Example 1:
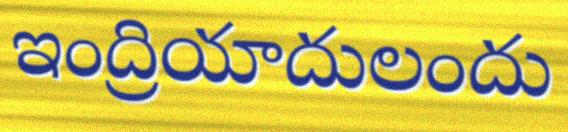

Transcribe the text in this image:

ఇంద్రియాదులందు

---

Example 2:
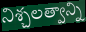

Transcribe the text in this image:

నిశ్చలత్వాన్ని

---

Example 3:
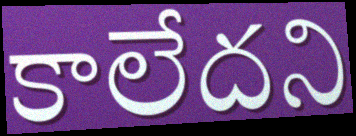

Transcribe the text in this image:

కాలేదని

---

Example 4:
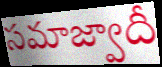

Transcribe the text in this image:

సమాజ్వాదీ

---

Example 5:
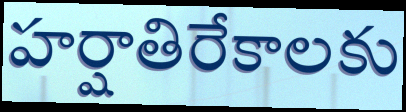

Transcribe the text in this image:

హర్షాతిరేకాలకు